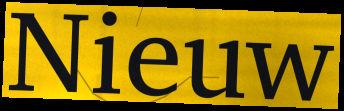
Nieuw